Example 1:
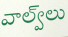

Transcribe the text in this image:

వాల్వ్‌లు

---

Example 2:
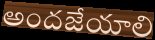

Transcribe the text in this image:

అందజేయాలి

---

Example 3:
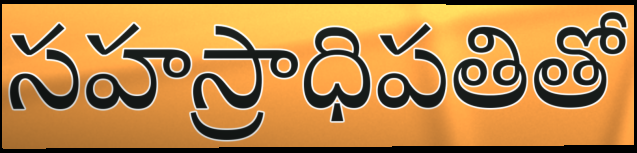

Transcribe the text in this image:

సహస్రాధిపతితో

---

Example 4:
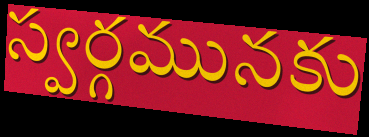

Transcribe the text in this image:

స్వర్గమునకు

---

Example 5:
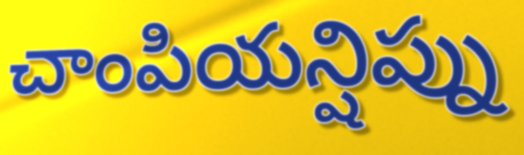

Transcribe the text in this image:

చాంపియన్షిప్ను